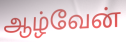
ஆழ்வேன்